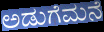
ಅಡುಗೆಮನೆ